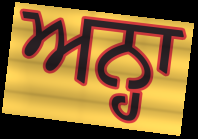
ਅਨ੍ਹਾ